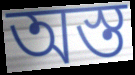
অস্ত